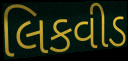
લિકવીડ